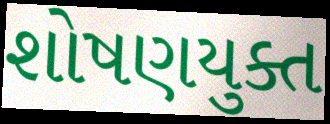
શોષણયુક્ત